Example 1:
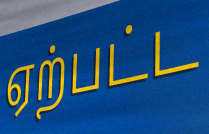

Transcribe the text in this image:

ஏற்பட்ட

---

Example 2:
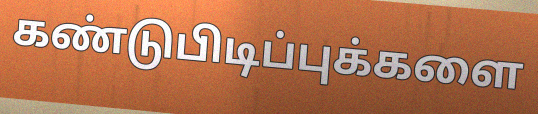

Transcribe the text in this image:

கண்டுபிடிப்புக்களை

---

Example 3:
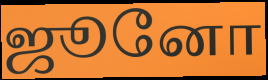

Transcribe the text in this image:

ஜூனோ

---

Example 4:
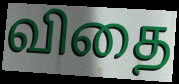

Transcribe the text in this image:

விதை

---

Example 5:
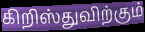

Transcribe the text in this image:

கிறிஸ்துவிற்கும்